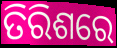
ତିରିଶରେ